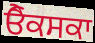
ਓੈਕਸਕਾ